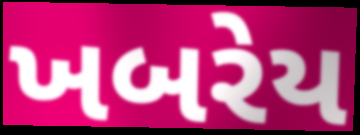
ખબરેય